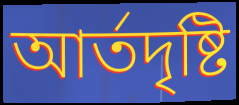
আর্তদৃষ্টি